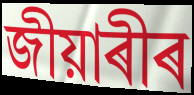
জীয়াৰীৰ